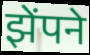
झेंपने